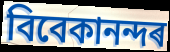
বিবেকানন্দৰ